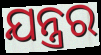
ଯନ୍ତ୍ରର